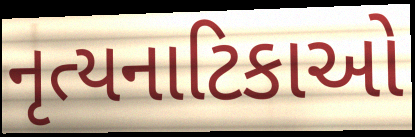
નૃત્યનાટિકાઓ